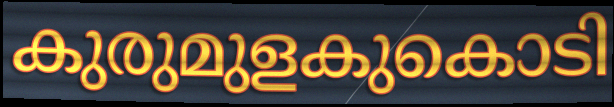
കുരുമുളകുകൊടി